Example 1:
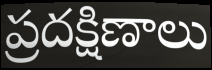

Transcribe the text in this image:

ప్రదక్షిణాలు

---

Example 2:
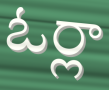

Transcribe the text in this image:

ఓర్లా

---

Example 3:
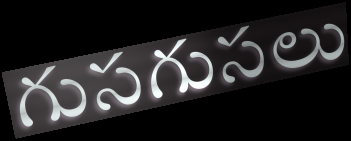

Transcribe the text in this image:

గుసగుసలు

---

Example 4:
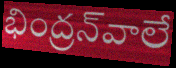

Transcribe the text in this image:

భింద్రన్‌వాలే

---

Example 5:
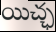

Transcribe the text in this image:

యిచ్ఛ